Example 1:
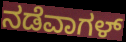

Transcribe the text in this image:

ನಡೆವಾಗಳ್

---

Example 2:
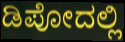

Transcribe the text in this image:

ಡಿಪೋದಲ್ಲಿ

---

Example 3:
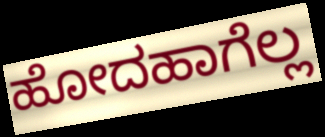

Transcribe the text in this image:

ಹೋದಹಾಗೆಲ್ಲ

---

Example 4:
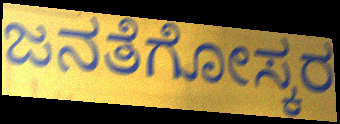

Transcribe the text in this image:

ಜನತೆಗೋಸ್ಕರ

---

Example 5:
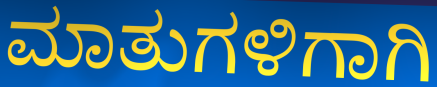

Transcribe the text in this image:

ಮಾತುಗಳಿಗಾಗಿ